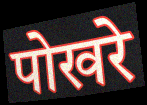
पोखरे